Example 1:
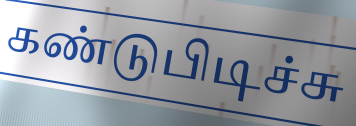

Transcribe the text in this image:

கண்டுபிடிச்சு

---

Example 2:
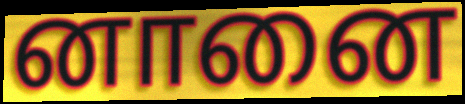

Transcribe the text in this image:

னானை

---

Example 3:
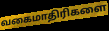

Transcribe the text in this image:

வகைமாதிரிகளை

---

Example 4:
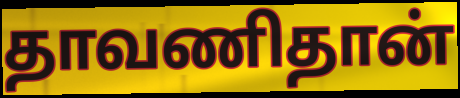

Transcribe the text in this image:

தாவணிதான்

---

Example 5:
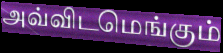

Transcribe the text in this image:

அவ்விடமெங்கும்